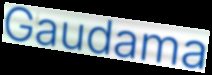
Gaudama